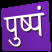
पुष्पं